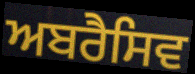
ਅਬਰੈਸਿਵ